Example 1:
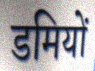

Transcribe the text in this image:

डमियों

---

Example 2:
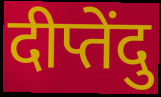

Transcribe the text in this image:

दीप्तेंदु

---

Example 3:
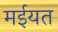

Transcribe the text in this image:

मईयत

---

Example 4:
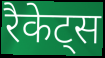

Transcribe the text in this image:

रैकेट्स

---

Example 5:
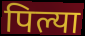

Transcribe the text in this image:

पिल्या